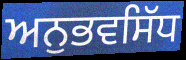
ਅਨੁਭਵਸਿੱਧ